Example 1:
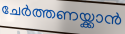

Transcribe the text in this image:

ചേർത്തണയ്ക്കാൻ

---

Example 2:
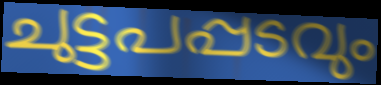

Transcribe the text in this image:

ചുട്ടപപ്പടവും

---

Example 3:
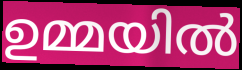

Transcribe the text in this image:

ഉമ്മയിൽ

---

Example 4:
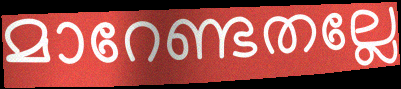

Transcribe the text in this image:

മാറേണ്ടതല്ലേ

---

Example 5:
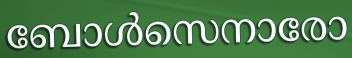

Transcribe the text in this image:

ബോൾസെനാരോ